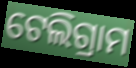
ଟେଲିଗ୍ରାମ